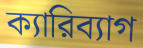
ক্যারিব্যাগ